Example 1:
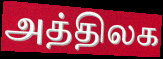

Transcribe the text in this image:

அத்திலக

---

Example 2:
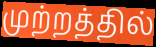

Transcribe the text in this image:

முற்றத்தில்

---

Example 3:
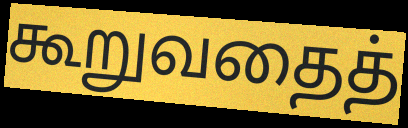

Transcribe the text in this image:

கூறுவதைத்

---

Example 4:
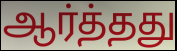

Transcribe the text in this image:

ஆர்த்தது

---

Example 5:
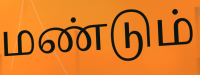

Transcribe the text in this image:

மண்டும்